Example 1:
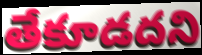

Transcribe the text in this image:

తేకూడదని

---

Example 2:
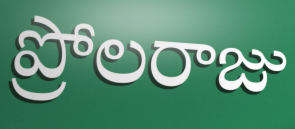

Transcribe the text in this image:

ప్రోలరాజు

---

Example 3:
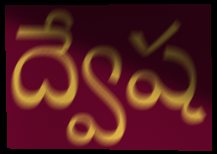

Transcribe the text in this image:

ద్వేష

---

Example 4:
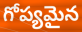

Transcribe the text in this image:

గోప్యమైన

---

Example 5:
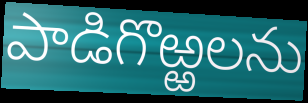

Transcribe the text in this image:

పాడిగొఱ్ఱలను